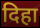
दिहा